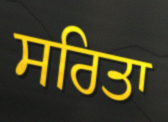
ਸਰਿਤਾ